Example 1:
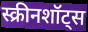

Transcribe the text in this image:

स्क्रीनशॉट्स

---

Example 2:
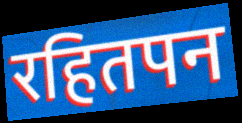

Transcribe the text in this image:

रहितपन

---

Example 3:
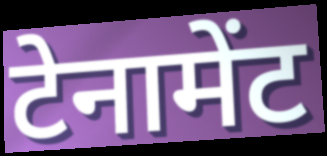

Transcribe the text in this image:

टेनामेंट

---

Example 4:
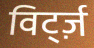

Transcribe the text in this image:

विर्ट्ज़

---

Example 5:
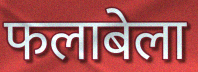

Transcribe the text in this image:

फलाबेला